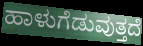
ಹಾಳುಗೆಡುವುತ್ತದೆ